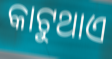
କାଟୁଥାଏ